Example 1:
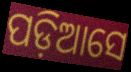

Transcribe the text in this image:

ପଡ଼ିଆସେ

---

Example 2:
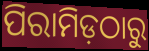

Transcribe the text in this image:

ପିରାମିଡ଼ଠାରୁ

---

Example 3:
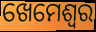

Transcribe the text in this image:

ଖେମେଶ୍ଵର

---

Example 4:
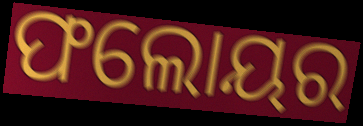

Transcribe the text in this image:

ଫଲୋୟର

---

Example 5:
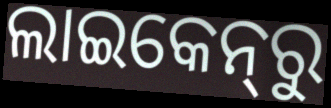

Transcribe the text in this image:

ଲାଇକେନ୍‌ରୁ